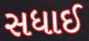
સધાઈ